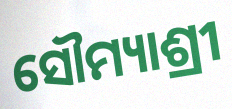
ସୌମ୍ୟାଶ୍ରୀ